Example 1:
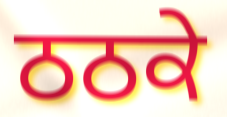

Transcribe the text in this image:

ਠਠਕੇ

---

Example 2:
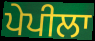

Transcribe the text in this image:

ਪੇਪੀਲਾ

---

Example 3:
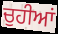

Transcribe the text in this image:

ਚੁਹੀਆਂ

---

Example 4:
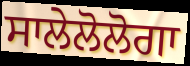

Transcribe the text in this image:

ਸਾਲੇਲੋਲੋਗਾ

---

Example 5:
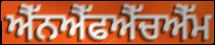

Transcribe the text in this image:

ਐੱਨਐੱਫਐੱਚਐੱਮ